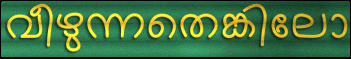
വീഴുന്നതെങ്കിലോ